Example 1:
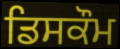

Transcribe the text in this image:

ਡਿਸਕੌਮ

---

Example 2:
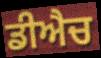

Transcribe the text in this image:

ਡੀਐਚ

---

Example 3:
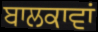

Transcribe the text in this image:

ਬਾਲਕਾਵਾਂ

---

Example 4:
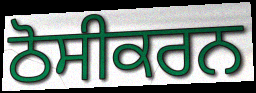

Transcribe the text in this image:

ਠੋਸੀਕਰਨ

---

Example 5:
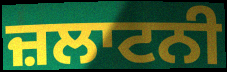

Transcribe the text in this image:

ਜ਼ਲਾਟਨੀ